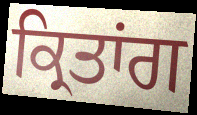
ਕ੍ਰਿਤਾਂਗ